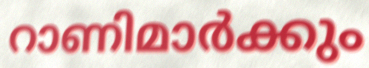
റാണിമാർക്കും